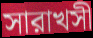
সারাখসী